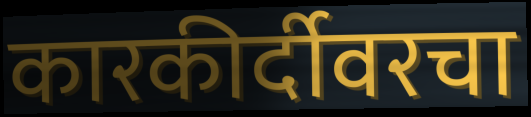
कारकीर्दीवरचा